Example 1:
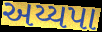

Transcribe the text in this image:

અય્યપા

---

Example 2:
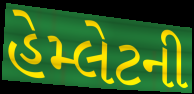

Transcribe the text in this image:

હેમ્લેટની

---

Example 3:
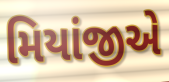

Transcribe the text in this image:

મિયાંજીએ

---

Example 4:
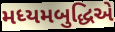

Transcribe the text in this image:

મધ્યમબુદ્ધિએ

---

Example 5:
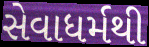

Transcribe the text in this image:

સેવાધર્મથી